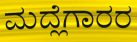
ಮದ್ಲೆಗಾರರ